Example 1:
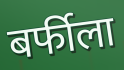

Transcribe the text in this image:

बर्फीला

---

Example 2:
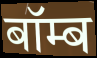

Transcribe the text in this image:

बॉम्ब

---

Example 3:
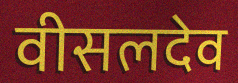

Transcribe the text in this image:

वीसलदेव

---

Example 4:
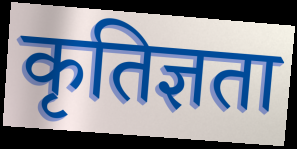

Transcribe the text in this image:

कृतिज्ञता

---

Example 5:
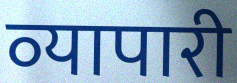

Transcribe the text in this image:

व्‍यापारी